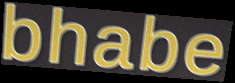
bhabe